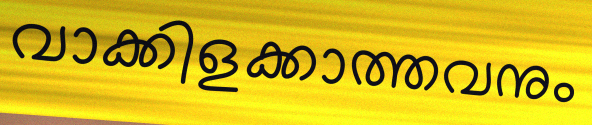
വാക്കിളക്കാത്തവനും